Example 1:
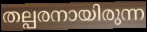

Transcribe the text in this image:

തല്പരനായിരുന്ന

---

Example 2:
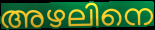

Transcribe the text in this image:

അഴലിനെ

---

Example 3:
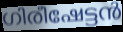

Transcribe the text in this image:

ഗിരീഷേട്ടൻ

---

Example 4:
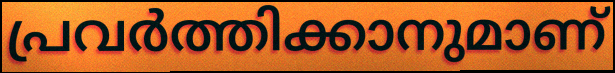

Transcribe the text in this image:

പ്രവർത്തിക്കാനുമാണ്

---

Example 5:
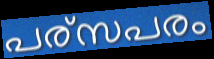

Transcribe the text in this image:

പര്സപരം